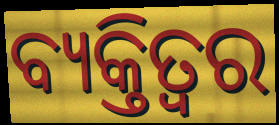
ବ୍ୟକ୍ତିତ୍ବର